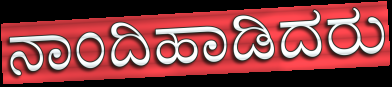
ನಾಂದಿಹಾಡಿದರು